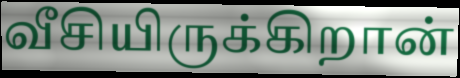
வீசியிருக்கிறான்